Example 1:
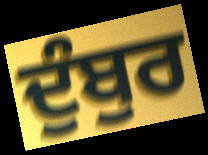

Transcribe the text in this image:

ਦੁੰਬੁਰ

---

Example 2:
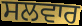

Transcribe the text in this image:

ਸਲਵਾਰ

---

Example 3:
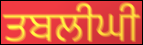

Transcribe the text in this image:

ਤਬਲੀਘੀ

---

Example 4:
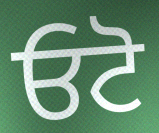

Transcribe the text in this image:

ਓਟੋ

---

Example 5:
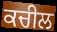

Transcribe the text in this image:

ਕਚੀਲ